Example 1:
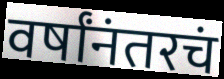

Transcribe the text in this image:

वर्षांनंतरचं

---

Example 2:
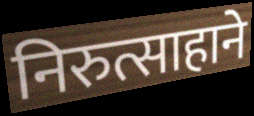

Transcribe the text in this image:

निरुत्साहाने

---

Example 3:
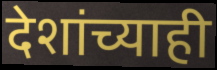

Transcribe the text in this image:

देशांच्याही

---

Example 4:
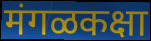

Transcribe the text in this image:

मंगळकक्षा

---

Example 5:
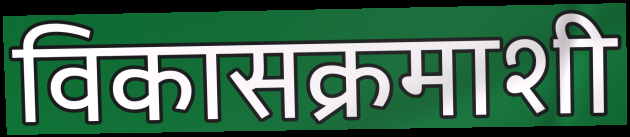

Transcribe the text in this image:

विकासक्रमाशी